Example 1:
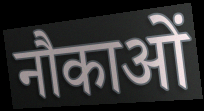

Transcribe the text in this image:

नौकाओं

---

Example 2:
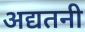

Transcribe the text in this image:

अद्यतनी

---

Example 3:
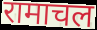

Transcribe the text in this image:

रामाचल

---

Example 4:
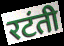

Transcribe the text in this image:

रटंती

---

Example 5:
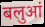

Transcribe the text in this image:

बलुआं